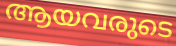
ആയവരുടെ